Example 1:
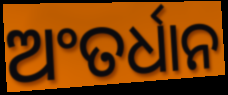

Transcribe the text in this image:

ଅଂତର୍ଧାନ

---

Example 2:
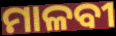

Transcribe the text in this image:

ମାଳବୀ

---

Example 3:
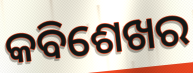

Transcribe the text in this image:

କବିଶେଖର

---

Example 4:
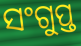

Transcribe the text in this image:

ସଂଗୁପ୍ତ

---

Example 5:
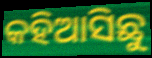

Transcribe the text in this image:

କହିଆସିଛୁ